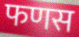
फणस